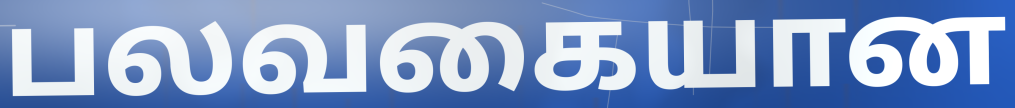
பலவகையான